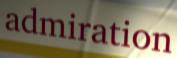
admiration